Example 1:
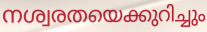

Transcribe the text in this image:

നശ്വരതയെക്കുറിച്ചും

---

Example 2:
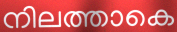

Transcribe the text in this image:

നിലത്താകെ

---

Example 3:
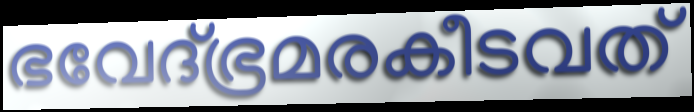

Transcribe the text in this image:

ഭവേദ്ഭ്രമരകീടവത്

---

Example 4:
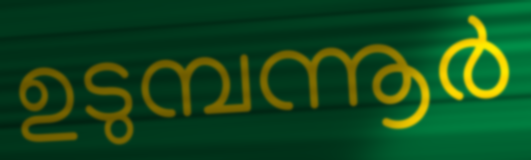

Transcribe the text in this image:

ഉടുമ്പന്നൂർ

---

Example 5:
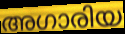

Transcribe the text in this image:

അഗാരിയ